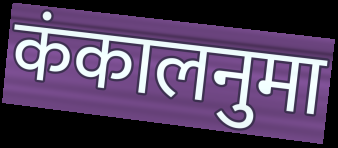
कंकालनुमा